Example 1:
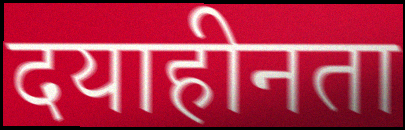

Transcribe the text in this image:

दयाहीनता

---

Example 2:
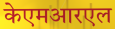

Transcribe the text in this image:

केएमआरएल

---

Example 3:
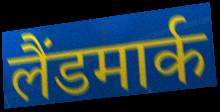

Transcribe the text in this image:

लैंडमार्क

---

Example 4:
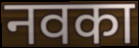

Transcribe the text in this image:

नवका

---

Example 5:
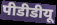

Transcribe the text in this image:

पीडीडीयू